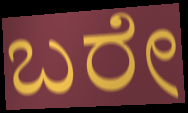
ಬರೇ